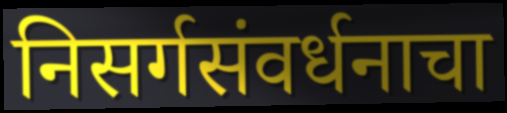
निसर्गसंवर्धनाचा